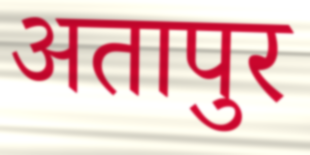
अतापुर